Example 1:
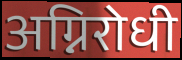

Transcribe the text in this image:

अग्निरोधी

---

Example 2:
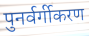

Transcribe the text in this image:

पुनर्वर्गीकरण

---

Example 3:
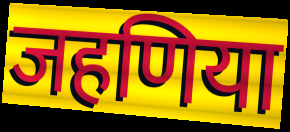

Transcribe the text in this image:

जहणिया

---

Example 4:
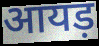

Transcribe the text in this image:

आयड़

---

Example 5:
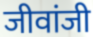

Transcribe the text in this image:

जीवांजी